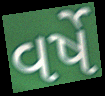
વર્ષે